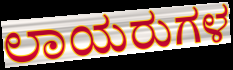
ಲಾಯರುಗಳ